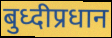
बुध्दीप्रधान